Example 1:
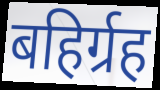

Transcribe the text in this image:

बहिर्ग्रह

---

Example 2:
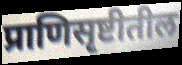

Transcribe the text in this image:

प्राणिसृष्टीतील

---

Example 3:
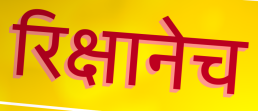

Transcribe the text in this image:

रिक्षानेच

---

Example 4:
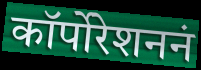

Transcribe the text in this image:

कॉर्पोरेशननं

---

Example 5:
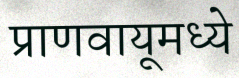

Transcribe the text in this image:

प्राणवायूमध्ये